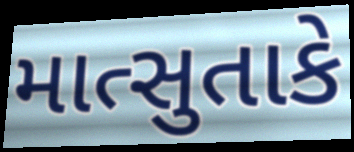
માત્સુતાકે